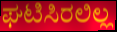
ಘಟಿಸಿರಲಿಲ್ಲ